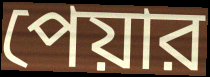
পেয়ার